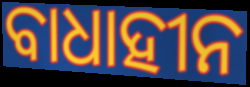
ବାଧାହୀନ